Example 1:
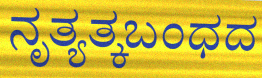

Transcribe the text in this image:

ನೃತ್ಯತ್ಕಬಂಧದ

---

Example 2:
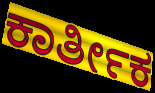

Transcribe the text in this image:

ಕಾರ್ತೀಕ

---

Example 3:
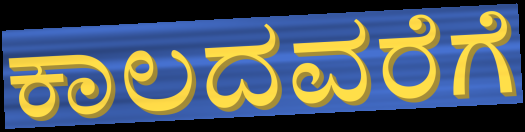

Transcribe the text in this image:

ಕಾಲದವರೆಗೆ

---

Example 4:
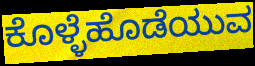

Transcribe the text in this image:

ಕೊಳ್ಳೆಹೊಡೆಯುವ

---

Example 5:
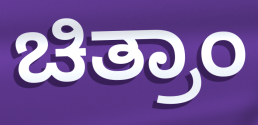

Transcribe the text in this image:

ಚಿತ್ರಾಂ